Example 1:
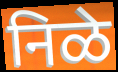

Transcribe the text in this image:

निळे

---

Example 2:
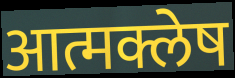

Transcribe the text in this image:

आत्मक्लेष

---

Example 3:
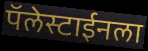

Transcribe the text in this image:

पॅलेस्टाईनला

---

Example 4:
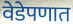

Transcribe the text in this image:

वेडेपणात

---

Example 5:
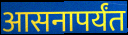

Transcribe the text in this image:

आसनापर्यंत